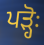
ਪੜ੍ਹੋਃ